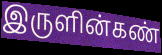
இருளின்கண்